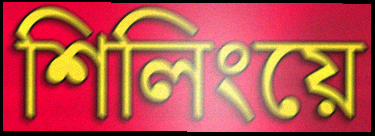
শিলিংয়ে